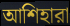
আশিহারা